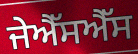
ਜੇਐੱਸਐੱਸ